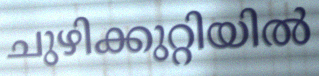
ചുഴിക്കുറ്റിയിൽ